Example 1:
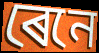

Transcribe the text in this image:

ৰেনে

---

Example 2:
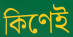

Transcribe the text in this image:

কিণেই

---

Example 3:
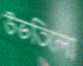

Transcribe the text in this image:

উভতিলো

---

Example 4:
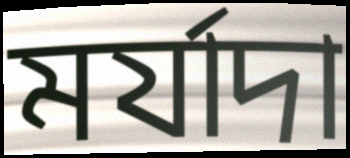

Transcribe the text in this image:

মৰ্যাদা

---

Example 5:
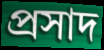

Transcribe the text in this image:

প্ৰসাদ